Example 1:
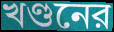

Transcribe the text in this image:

খণ্ডনের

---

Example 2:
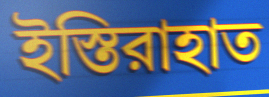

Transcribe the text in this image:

ইস্তিরাহাত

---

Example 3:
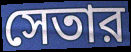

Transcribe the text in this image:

সেতার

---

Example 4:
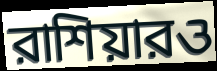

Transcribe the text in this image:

রাশিয়ারও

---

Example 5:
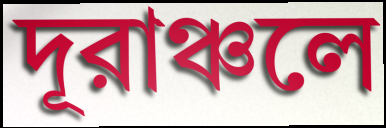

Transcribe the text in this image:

দূরাঞ্চলে